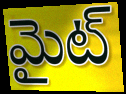
మైట్